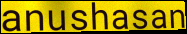
anushasan